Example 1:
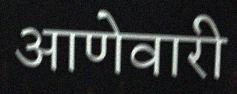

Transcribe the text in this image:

आणेवारी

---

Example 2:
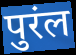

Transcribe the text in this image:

पुरंल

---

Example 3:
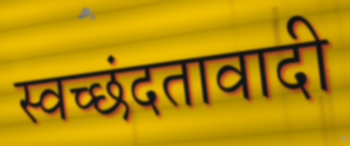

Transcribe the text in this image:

स्वच्छंदतावादी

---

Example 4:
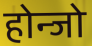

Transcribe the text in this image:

होन्जो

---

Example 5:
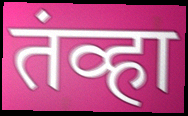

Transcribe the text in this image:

तंव्हा